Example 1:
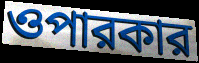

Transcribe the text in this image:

ওপারকার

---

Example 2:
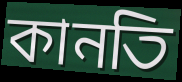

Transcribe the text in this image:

কানতি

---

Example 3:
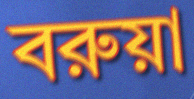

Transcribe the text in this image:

বরুয়া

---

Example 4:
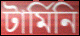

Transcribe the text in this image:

টার্মিনি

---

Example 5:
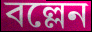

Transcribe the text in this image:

বল্লেন